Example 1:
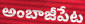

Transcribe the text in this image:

అంబాజీపేట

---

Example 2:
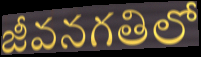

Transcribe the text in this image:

జీవనగతిలో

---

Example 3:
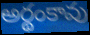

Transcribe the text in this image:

అర్థంకావు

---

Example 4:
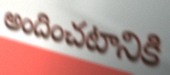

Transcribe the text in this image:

అందించటానికి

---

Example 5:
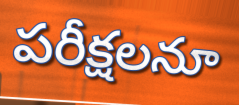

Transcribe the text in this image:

పరీక్షలనూ